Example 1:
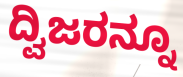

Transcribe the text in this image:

ದ್ವಿಜರನ್ನೂ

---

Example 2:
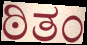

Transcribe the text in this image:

ಠಿತಂ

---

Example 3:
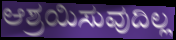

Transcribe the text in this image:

ಆಶ್ರಯಿಸುವುದಿಲ್ಲ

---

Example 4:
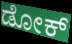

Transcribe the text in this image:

ಡೋಕ್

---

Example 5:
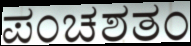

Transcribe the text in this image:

ಪಂಚಶತಂ